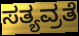
ಸತ್ಯವ್ರತೆ